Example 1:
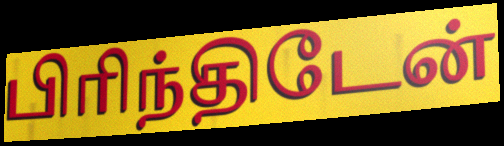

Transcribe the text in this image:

பிரிந்திடேன்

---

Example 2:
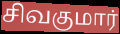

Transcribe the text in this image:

சிவகுமார்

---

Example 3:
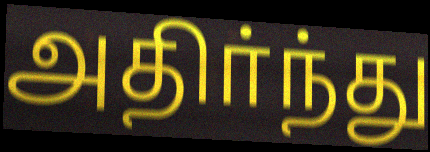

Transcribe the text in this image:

அதிர்ந்து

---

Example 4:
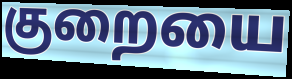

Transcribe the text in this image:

குறையை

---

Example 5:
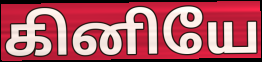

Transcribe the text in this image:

கினியே